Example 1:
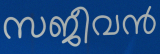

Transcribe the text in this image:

സജീവൻ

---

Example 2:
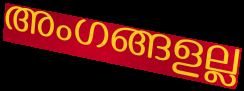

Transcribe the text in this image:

അംഗങ്ങളല്ല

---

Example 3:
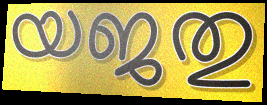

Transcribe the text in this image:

യജതു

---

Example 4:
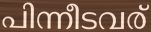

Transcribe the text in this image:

പിന്നീടവര്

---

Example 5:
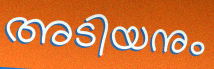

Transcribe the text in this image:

അടിയനും